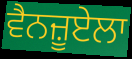
ਵੈਨਜ਼ੂਏਲਾ